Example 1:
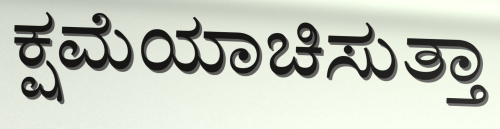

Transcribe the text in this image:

ಕ್ಷಮೆಯಾಚಿಸುತ್ತಾ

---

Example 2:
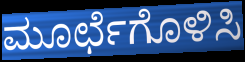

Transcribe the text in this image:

ಮೂರ್ಛೆಗೊಳಿಸಿ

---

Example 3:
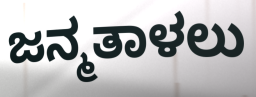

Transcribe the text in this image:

ಜನ್ಮತಾಳಲು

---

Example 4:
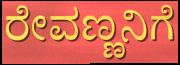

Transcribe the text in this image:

ರೇವಣ್ಣನಿಗೆ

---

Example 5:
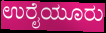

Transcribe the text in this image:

ಉರೈಯೂರು